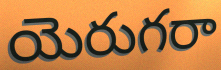
యెరుగరా